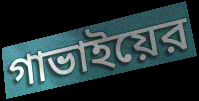
গাভাইয়ের